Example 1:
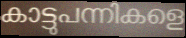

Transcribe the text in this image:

കാട്ടുപന്നികളെ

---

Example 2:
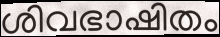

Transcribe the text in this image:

ശിവഭാഷിതം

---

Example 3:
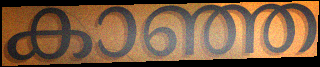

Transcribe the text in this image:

കാഞ്ഞ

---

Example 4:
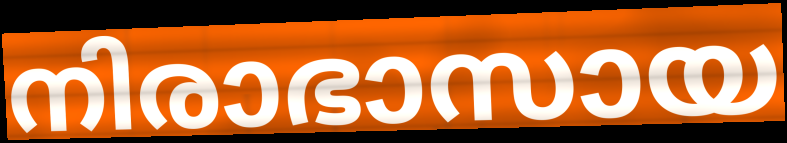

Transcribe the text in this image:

നിരാഭാസായ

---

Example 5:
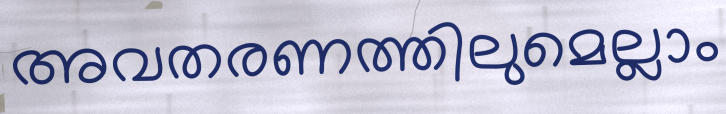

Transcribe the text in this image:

അവതരണത്തിലുമെല്ലാം